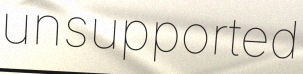
unsupported